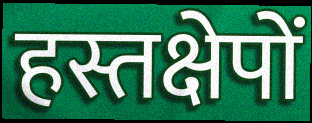
हस्तक्षेपों